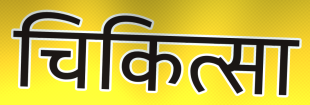
चिकित्सा